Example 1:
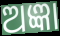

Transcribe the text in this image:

ଅଜ୍ଞା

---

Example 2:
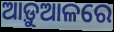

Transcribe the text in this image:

ଆଡ଼ୁଆଳରେ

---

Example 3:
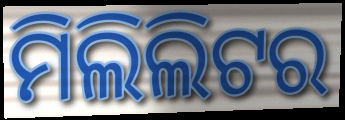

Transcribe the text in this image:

ମିଲିଲିଟର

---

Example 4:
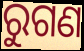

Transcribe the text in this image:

ରୁଗଣ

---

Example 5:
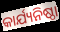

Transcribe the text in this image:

କାର୍ଯ୍ୟନିଷ୍ଠା